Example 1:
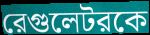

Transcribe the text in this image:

রেগুলেটরকে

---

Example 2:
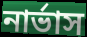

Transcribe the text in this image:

নার্ভাস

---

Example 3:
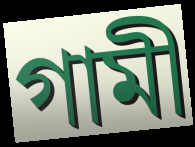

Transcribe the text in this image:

গামী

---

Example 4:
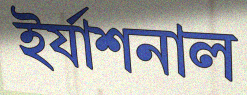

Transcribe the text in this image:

ইর্যাশনাল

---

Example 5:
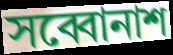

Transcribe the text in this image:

সব্বোনাশ